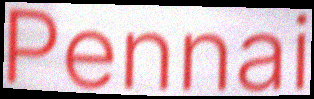
Pennai